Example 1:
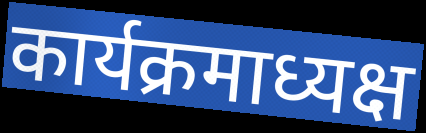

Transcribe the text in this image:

कार्यक्रमाध्यक्ष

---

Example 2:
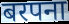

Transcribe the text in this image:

बरपना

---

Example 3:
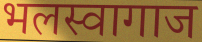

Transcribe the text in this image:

भलस्वागाज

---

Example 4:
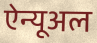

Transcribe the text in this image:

ऐन्यूअल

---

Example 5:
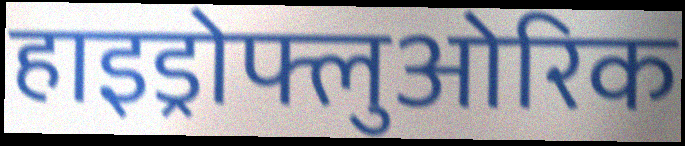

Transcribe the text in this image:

हाइड्रोफ्लुओरिक